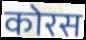
कोरस